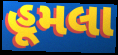
હૂમલા